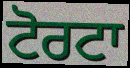
ਟੋਰਟਾ